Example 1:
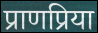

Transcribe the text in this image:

प्राणप्रिया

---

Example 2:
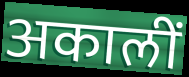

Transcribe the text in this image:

अकालीं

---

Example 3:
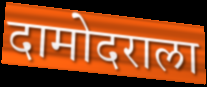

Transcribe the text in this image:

दामोदराला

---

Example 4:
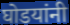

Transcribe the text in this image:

घोडयांनी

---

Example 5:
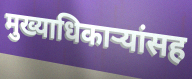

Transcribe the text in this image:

मुख्याधिकाऱ्यांसह